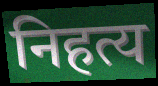
निहत्य